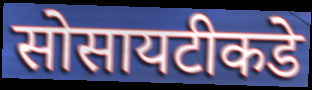
सोसायटीकडे